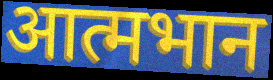
आत्मभान